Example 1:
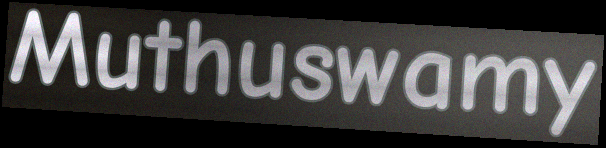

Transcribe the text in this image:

Muthuswamy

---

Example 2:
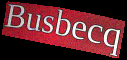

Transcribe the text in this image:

Busbecq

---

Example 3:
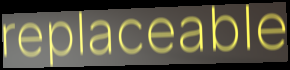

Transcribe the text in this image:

replaceable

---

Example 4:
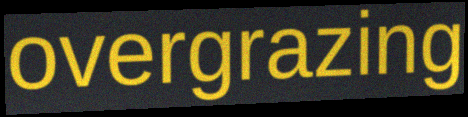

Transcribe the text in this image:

overgrazing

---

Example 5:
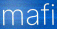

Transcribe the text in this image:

mafi